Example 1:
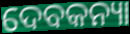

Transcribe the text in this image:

ଦେବକନ୍ୟା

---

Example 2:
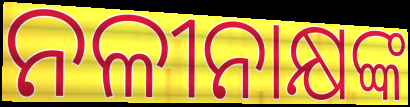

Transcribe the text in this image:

ନଳୀନାକ୍ଷଙ୍କ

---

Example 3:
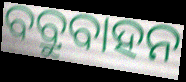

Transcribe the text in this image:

ବବ୍ରୁବାହନ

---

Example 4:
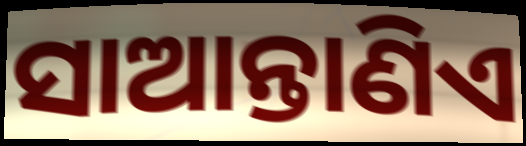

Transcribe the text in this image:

ସାଆନ୍ତାଣିଏ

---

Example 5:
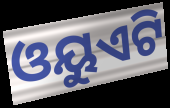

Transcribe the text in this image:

ଓୟୁଏଟି